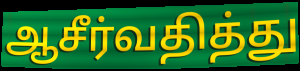
ஆசீர்வதித்து